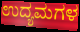
ಉದ್ಯಮಗಳ